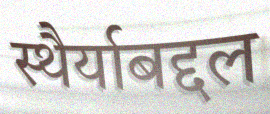
स्थैर्याबद्दल